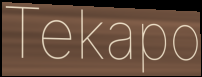
Tekapo